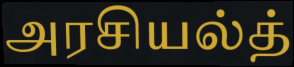
அரசியல்த்